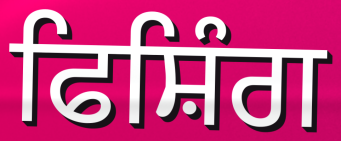
ਫਿਸ਼ਿੰਗ